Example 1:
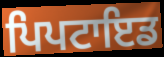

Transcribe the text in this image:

ਪਿਪਟਾਇਡ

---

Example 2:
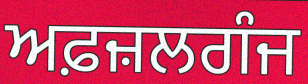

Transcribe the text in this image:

ਅਫ਼ਜ਼ਲਗੰਜ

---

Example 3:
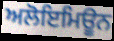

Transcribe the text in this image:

ਅਲੋਇਮਿਊਨ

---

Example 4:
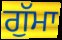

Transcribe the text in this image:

ਗੁੱਮਾ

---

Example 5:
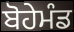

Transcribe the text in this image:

ਬੋਹੇਮੰਡ